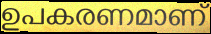
ഉപകരണമാണ്